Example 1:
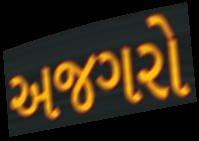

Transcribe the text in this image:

અજગરો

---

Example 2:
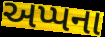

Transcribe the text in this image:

અપ્પના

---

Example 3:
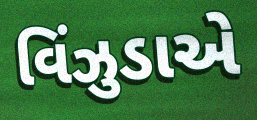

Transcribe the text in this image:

વિંઝુડાએ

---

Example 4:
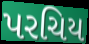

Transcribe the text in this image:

પરચિય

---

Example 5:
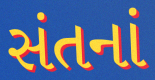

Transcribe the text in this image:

સંતનાં